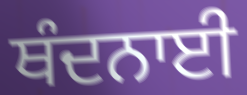
ਥੰਦਨਾਈ